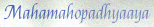
Mahamahopadhyaaya